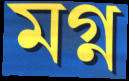
মগ্ন